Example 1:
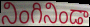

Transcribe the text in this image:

నింగినిండా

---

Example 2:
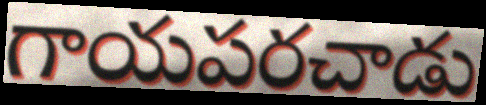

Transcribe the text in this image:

గాయపరచాడు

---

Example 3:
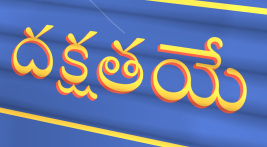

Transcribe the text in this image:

దక్షతయే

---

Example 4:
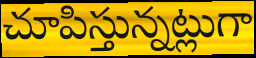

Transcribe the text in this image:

చూపిస్తున్నట్లుగా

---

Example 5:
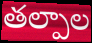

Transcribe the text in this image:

తల్పాల